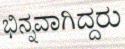
ಭಿನ್ನವಾಗಿದ್ದರು